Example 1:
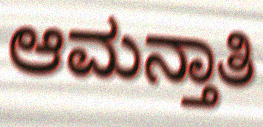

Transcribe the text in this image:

ಆಮನ್ತಾತಿ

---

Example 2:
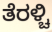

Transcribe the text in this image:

ತೆರಳ್ಚಿ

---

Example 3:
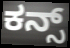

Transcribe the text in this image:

ಕನ್ಸ್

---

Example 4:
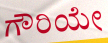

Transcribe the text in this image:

ಗೌರಿಯೇ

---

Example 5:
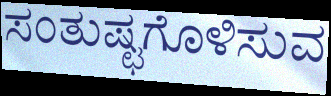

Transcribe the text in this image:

ಸಂತುಷ್ಟಗೊಳಿಸುವ